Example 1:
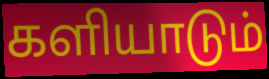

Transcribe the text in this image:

களியாடும்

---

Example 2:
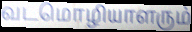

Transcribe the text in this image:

வடமொழியாளரும்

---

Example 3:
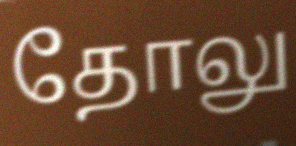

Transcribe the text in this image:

தோலு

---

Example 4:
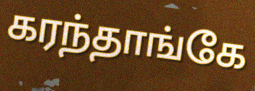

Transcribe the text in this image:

கரந்தாங்கே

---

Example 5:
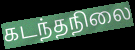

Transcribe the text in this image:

கடந்தநிலை